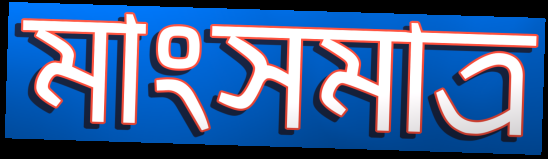
মাংসমাত্র